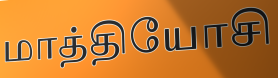
மாத்தியோசி